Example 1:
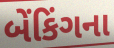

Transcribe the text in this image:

બેંકિંગના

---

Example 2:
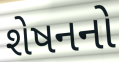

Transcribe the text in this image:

શેષનનો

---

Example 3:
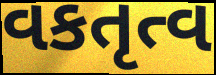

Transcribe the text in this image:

વકતૃત્વ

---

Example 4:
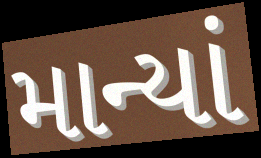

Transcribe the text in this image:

માન્યાં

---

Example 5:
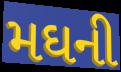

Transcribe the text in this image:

મઘની